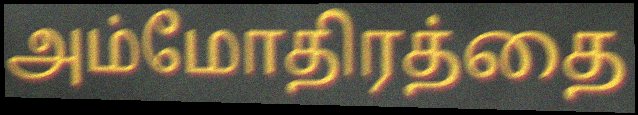
அம்மோதிரத்தை